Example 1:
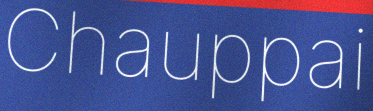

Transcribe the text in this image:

Chauppai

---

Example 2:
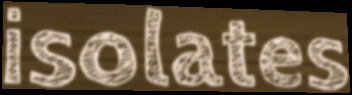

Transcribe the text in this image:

isolates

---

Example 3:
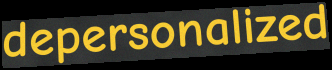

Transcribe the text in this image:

depersonalized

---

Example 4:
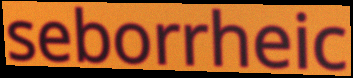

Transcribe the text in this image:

seborrheic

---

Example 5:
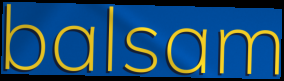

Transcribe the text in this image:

balsam